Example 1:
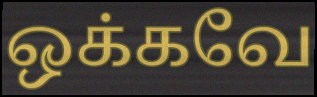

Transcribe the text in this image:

ஒக்கவே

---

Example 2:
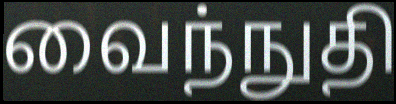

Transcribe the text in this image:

வைந்நுதி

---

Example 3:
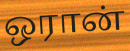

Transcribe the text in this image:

ஒரான்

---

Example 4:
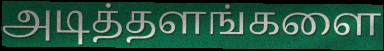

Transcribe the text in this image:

அடித்தளங்களை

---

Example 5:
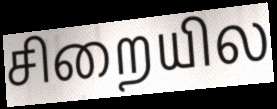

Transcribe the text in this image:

சிறையில